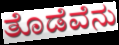
ತೊಡೆವೆನು